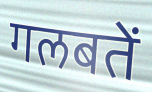
गलबतें